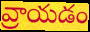
వ్రాయడం